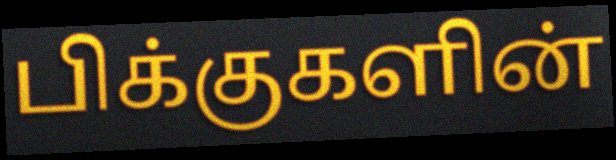
பிக்குகளின்